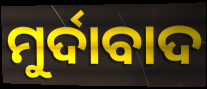
ମୁର୍ଦାବାଦ